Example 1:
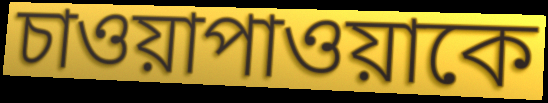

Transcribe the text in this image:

চাওয়াপাওয়াকে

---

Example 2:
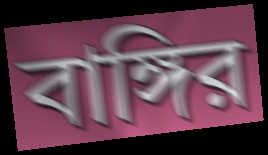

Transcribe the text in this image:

বাঙ্গির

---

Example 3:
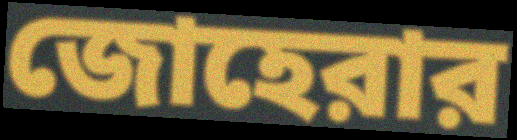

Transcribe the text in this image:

জোহেরার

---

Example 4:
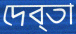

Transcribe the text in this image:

দেব্‌তা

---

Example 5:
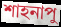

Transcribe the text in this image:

শাহনাপু